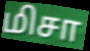
மிசா